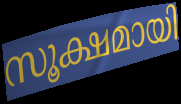
സൂക്ഷമായി